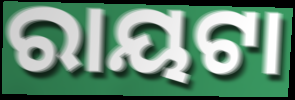
ରାୟଟା